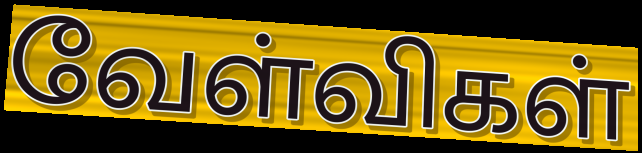
வேள்விகள்